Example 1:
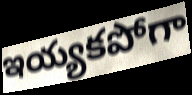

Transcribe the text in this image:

ఇయ్యకపోగా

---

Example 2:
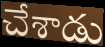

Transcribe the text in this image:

చేశాడు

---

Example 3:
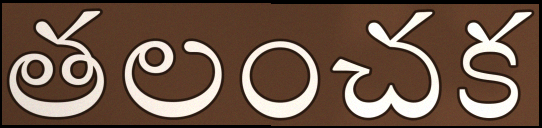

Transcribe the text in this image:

తలంచక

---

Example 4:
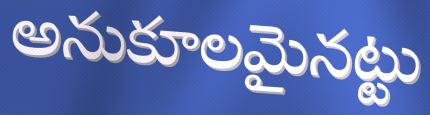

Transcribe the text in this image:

అనుకూలమైనట్టు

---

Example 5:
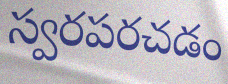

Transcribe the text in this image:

స్వరపరచడం